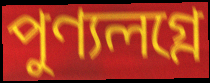
পুণ্যলগ্নে